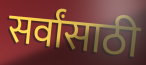
सर्वांसाठी